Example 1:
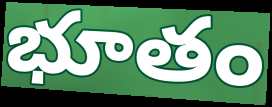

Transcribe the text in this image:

భూతం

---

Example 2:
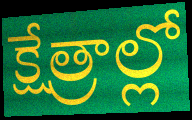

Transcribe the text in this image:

క్షేత్రాల్లో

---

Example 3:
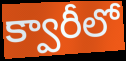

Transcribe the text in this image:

క్వారీలో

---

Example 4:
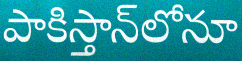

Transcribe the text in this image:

పాకిస్తాన్‌లోనూ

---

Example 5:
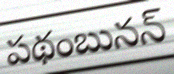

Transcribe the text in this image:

పథంబునన్